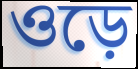
ওড়ে